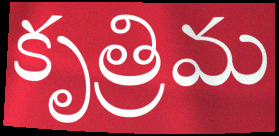
కృత్రిమ